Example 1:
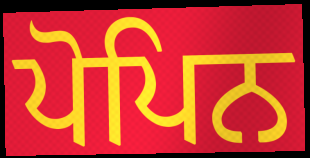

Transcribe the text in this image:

ਪੋਪਿਨ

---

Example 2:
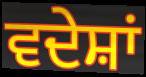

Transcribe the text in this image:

ਵਦੇਸ਼ਾਂ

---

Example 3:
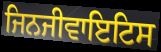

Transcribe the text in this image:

ਜਿਨਜੀਵਾਇਟਿਸ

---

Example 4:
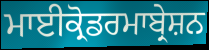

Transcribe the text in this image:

ਮਾਈਕ੍ਰੋਡਰਮਾਬ੍ਰੇਸ਼ਨ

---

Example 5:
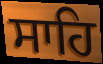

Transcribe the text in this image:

ਸਾਹਿ